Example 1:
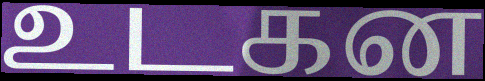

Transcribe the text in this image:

உடகன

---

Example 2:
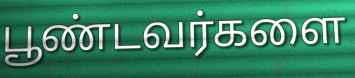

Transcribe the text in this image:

பூண்டவர்களை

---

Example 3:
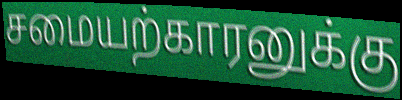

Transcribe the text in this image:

சமையற்காரனுக்கு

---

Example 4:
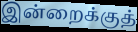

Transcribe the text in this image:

இன்றைக்குத்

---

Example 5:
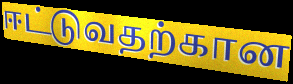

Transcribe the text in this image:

ஈட்டுவதற்கான